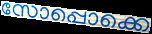
സോപ്പൊക്കെ